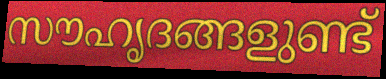
സൗഹൃദങ്ങളുണ്ട്